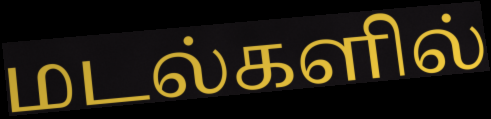
மடல்களில்